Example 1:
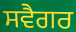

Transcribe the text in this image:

ਸਵੈਗਰ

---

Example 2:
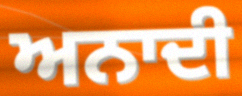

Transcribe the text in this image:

ਅਨਾਦੀ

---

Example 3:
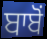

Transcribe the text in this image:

ਬਾਬੋਂ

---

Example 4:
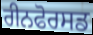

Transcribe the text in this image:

ਰੀਨਫੋਰਸਡ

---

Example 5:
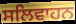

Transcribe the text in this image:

ਸਲਿਵਾਹਨ